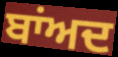
ਬਾਂਅਦ